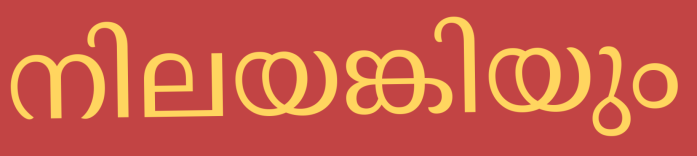
നിലയങ്കിയും